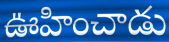
ఊహించాడు